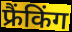
फ्रैंकिंग